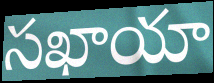
సఖాయా